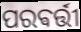
ପରଵର୍ତ୍ତୀ